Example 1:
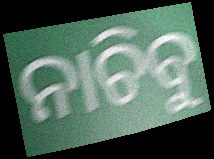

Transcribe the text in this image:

ନାଚିବୁ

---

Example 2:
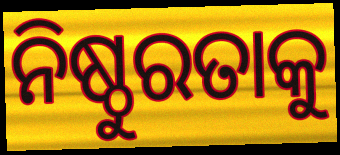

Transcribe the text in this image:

ନିଷ୍ଠୁରତାକୁ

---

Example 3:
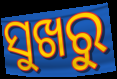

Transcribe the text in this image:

ସୁଖରୁ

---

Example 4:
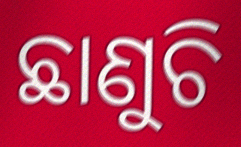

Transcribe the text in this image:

ଛାଣୁଚି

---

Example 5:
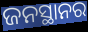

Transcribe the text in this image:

ଜନସ୍ଥାନର